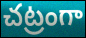
చట్రంగా